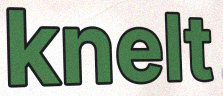
knelt